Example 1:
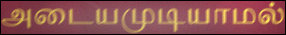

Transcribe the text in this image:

அடையமுடியாமல்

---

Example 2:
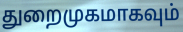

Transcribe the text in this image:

துறைமுகமாகவும்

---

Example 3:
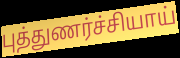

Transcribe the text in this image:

புத்துணர்ச்சியாய்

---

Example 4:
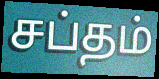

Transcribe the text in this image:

சப்தம்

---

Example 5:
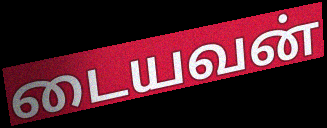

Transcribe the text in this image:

டையவன்